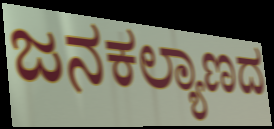
ಜನಕಲ್ಯಾಣದ